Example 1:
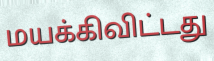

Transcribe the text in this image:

மயக்கிவிட்டது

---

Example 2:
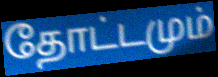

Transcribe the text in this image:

தோட்டமும்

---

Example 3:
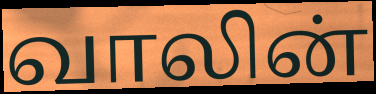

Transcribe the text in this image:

வாலின்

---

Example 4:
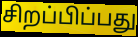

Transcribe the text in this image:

சிறப்பிப்பது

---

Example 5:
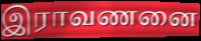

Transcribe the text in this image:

இராவணனை